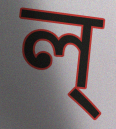
ল্